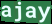
ajay